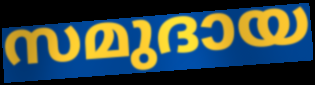
സമുദായ